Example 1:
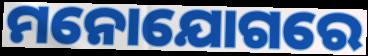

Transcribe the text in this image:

ମନୋଯୋଗରେ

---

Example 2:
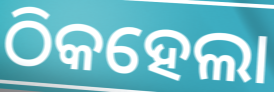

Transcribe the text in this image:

ଠିକହେଲା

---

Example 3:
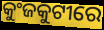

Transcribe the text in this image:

କୁଂଜକୁଟୀରେ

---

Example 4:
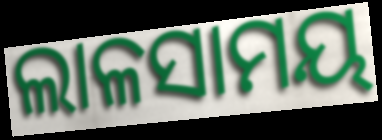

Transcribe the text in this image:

ଲାଳସାମୟ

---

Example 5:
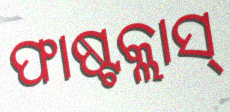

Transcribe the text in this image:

ଫାଷ୍ଟକ୍ଲାସ୍